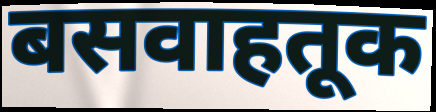
बसवाहतूक